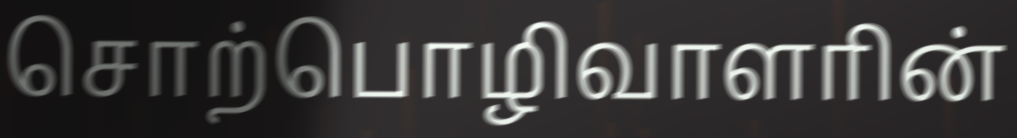
சொற்பொழிவாளரின்